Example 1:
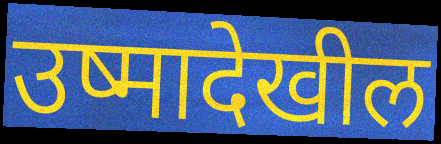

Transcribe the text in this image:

उष्मादेखील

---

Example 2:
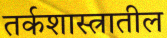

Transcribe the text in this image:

तर्कशास्त्रातील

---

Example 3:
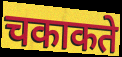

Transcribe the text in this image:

चकाकते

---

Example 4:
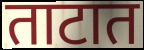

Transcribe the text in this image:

ताटात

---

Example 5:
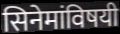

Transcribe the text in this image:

सिनेमांविषयी